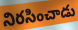
నిరసించాడు